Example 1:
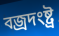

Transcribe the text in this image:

বজ্রদংষ্ট্র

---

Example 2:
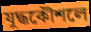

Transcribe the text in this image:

যুদ্ধকৌশলে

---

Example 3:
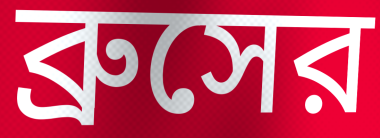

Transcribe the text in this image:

ব্রুসের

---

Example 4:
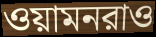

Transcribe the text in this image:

ওয়ামনরাও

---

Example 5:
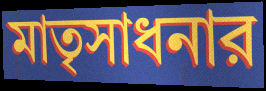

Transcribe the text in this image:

মাতৃসাধনার